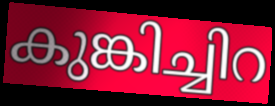
കുങ്കിച്ചിറ